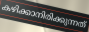
കഴിക്കാനിരിക്കുന്നത്